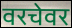
वरचेवर